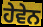
ਹੇਵੇਨ